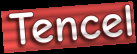
Tencel